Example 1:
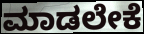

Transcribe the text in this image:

ಮಾಡಲೇಕೆ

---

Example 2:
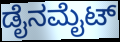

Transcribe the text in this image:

ಡೈನಮೈಟ್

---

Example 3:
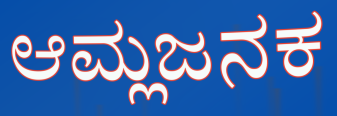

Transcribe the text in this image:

ಆಮ್ಲಜನಕ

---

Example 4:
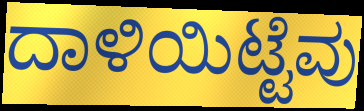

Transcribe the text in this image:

ದಾಳಿಯಿಟ್ಟೆವು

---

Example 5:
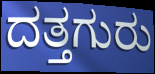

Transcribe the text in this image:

ದತ್ತಗುರು